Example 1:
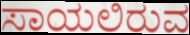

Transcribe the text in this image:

ಸಾಯಲಿರುವ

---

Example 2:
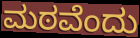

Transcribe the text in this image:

ಮಠವೆಂದು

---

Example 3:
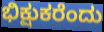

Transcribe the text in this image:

ಭಿಕ್ಷುಕರೆಂದು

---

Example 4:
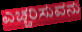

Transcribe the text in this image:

ಎಚ್ಚರಿಸುವನು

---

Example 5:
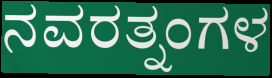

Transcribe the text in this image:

ನವರತ್ನಂಗಳ